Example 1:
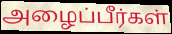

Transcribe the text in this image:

அழைப்பீர்கள்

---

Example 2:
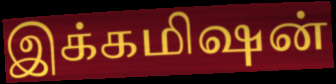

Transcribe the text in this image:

இக்கமிஷன்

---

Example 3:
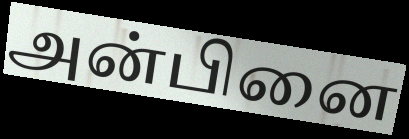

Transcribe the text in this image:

அன்பினை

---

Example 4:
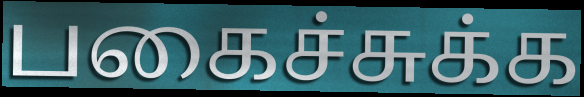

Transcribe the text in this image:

பகைச்சுக்க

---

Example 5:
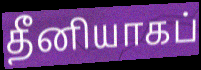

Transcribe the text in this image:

தீனியாகப்